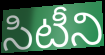
సిటీని